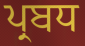
ਪ੍ਰਬਧ